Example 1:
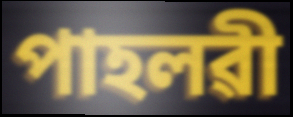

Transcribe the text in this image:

পাহলৱী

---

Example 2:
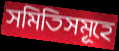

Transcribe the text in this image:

সমিতিসমূহে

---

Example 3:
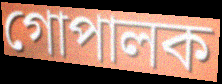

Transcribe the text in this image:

গোপালক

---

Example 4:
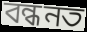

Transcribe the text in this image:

বন্ধনত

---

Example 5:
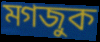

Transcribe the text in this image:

মগজুক